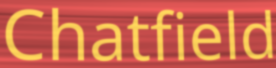
Chatfield